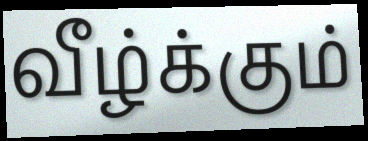
வீழ்க்கும்